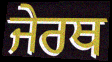
ਜੇਰਥ